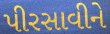
પીરસાવીને